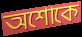
অশোকে